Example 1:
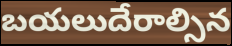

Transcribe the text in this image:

బయలుదేరాల్సిన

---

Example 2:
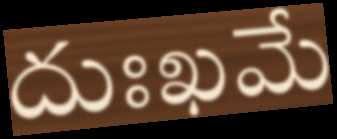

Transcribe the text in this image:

దుఃఖమే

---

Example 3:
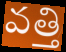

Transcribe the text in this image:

వత్తి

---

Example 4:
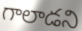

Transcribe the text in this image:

గాలాడని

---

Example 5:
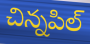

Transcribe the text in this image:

చిన్నపిల్